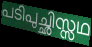
പടിപുച്ഛിസ്സഥ